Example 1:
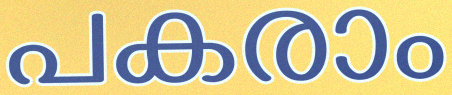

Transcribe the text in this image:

പകരാം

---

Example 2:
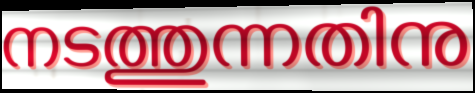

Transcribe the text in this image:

നടത്തുന്നതിനു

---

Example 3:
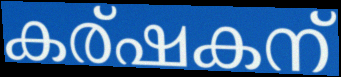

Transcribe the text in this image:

കര്ഷകന്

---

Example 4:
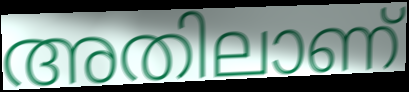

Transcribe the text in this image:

അതിലാണ്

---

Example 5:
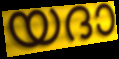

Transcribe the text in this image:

യദാ